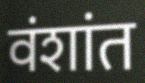
वंशांत